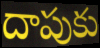
దాపుకు